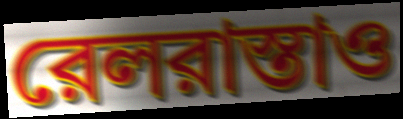
রেলরাস্তাও